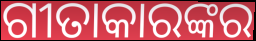
ଗୀତାକାରଙ୍କର